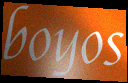
boyos